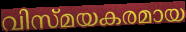
വിസ്മയകരമായ